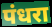
पंधरा